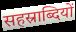
सहस्राब्दियों